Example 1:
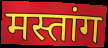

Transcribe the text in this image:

मस्तांग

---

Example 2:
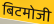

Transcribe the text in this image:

बिटमोजी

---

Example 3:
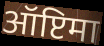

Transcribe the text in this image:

ऑप्टिमा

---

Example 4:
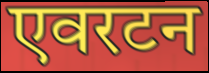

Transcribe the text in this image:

एवरटन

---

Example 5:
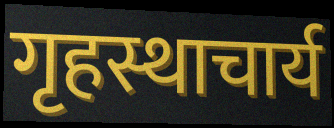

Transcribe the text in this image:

गृहस्थाचार्य